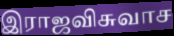
இராஜவிசுவாச